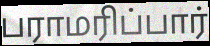
பராமரிப்பார்